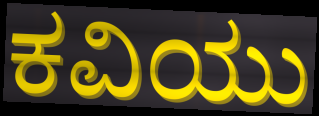
ಕವಿಯು